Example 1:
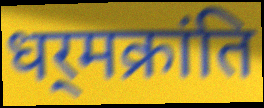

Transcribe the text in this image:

धर्मक्रांति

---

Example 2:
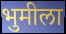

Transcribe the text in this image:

भुमीला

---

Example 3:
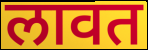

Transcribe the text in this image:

लावत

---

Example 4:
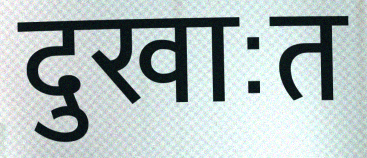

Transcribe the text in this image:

दुखाःत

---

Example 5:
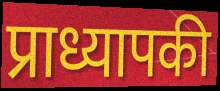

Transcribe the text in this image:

प्राध्यापकी